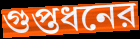
গুপ্তধনের